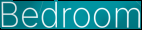
Bedroom